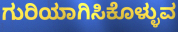
ಗುರಿಯಾಗಿಸಿಕೊಳ್ಳುವ